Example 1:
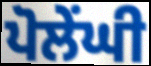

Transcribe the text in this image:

ਪੋਲੇਂਘੀ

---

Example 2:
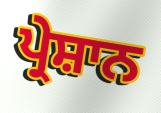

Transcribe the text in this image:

ਪ੍ਰੇਸ਼ਾਨ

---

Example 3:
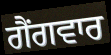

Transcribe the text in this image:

ਗੈਂਗਵਾਰ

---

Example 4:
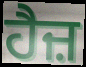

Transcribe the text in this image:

ਹੈਜ਼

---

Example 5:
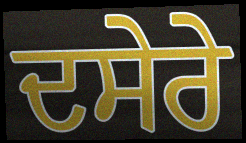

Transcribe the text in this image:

ਦਸੇਰੇ